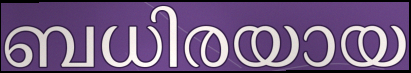
ബധിരയായ